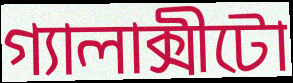
গ্যালাক্সীটো